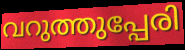
വറുത്തുപ്പേരി